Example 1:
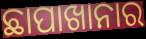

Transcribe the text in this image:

ଛାପାଖାନାର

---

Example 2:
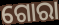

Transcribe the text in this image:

ଗୋରା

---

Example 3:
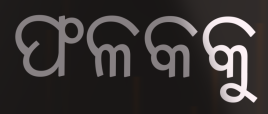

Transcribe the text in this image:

ଫଳକକୁ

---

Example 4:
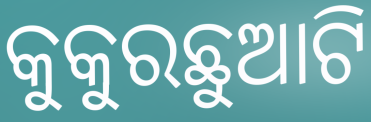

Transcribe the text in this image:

କୁକୁରଛୁଆଟି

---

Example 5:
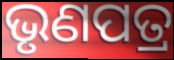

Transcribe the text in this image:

ଭୃଣପତ୍ର